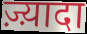
ज़्य़ादा